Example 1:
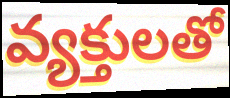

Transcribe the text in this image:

వ్యక్తులతో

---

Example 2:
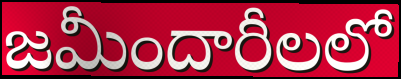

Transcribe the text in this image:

జమీందారీలలో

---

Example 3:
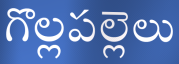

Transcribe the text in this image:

గొల్లపల్లెలు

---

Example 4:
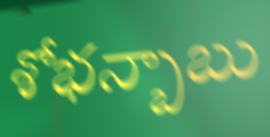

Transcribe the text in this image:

శోభన్బాబు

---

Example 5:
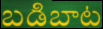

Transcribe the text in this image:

బడిబాట